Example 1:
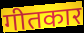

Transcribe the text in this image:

गीतकार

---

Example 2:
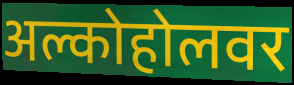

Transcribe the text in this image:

अल्कोहोलवर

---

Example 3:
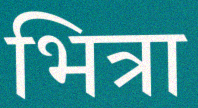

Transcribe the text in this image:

भित्रा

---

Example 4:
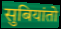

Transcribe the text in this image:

सुबियांतो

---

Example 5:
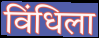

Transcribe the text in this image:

विंधिला